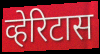
व्हेरिटास